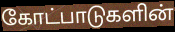
கோட்பாடுகளின்